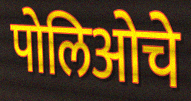
पोलिओचे